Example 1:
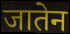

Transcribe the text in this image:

जातेन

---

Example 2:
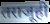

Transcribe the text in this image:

तराजूही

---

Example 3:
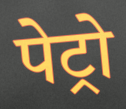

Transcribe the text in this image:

पेट्रो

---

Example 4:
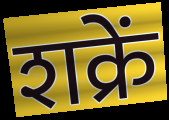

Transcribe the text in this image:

शक्रें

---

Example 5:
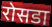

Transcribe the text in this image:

रोसडा